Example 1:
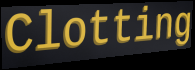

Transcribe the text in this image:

Clotting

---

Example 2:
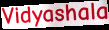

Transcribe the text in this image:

Vidyashala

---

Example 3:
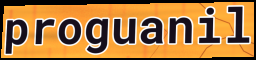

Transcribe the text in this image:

proguanil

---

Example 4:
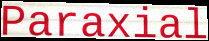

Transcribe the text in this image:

Paraxial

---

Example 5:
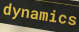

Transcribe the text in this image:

dynamics